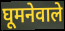
घूमनेवाले